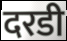
दरडी